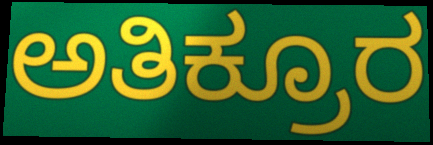
ಅತಿಕ್ರೂರ